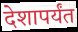
देशापर्यंत